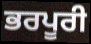
ਭਰਪੂਰੀ